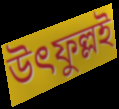
উৎফুল্লই